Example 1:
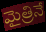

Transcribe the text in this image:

మైత్రినే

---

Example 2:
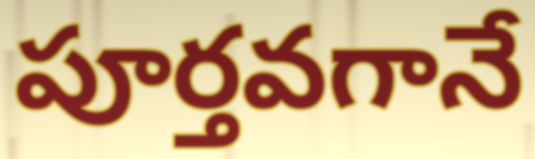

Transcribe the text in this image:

పూర్తవగానే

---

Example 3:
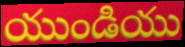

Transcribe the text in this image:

యుండియు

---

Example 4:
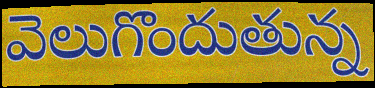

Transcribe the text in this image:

వెలుగొందుతున్న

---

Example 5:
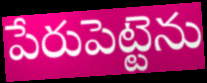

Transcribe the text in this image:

పేరుపెట్టెను